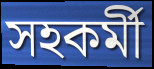
সহকর্মী